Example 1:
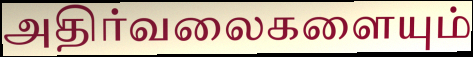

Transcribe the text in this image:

அதிர்வலைகளையும்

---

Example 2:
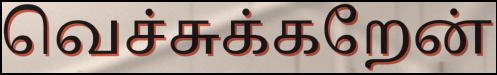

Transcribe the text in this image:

வெச்சுக்கறேன்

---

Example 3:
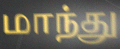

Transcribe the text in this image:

மாந்து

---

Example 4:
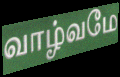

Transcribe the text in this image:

வாழ்வமே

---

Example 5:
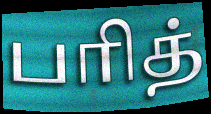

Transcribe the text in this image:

பரித்